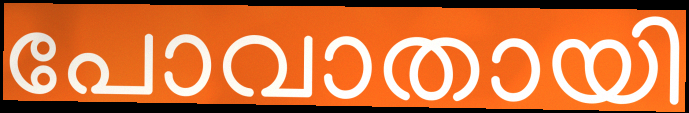
പോവാതായി